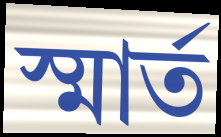
স্মার্ত